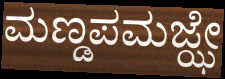
ಮಣ್ಡಪಮಜ್ಝೇ